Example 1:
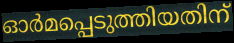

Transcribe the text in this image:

ഓർമപ്പെടുത്തിയതിന്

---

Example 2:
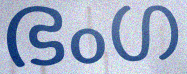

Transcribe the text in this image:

ഭംഗ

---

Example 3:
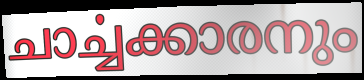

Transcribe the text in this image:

ചാൎച്ചക്കാരനും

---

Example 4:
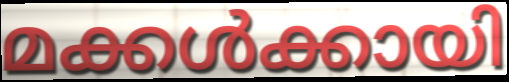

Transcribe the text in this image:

മക്കൾക്കായി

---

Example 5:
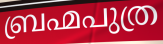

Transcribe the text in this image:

ബ്രഹ്മപുത്ര